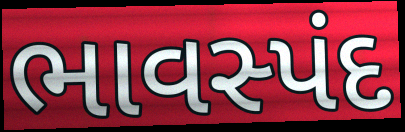
ભાવસ્પંદ